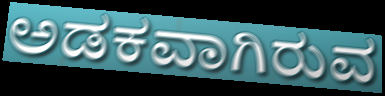
ಅಡಕವಾಗಿರುವ